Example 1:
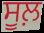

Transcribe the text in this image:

ਸੂਲ਼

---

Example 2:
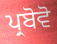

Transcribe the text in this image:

ਪ੍ਰਬੋਵੋ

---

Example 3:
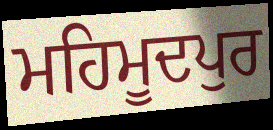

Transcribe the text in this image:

ਮਹਿਮੂਦਪੁਰ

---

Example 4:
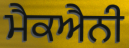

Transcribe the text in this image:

ਮੈਕਐਨੀ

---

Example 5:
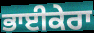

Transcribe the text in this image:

ਭਾਈਕੇਰਾ